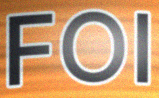
FOI